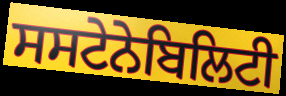
ਸਸਟੇਨੇਬਿਲਿਟੀ